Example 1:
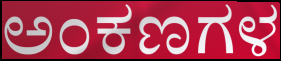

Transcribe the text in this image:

ಅಂಕಣಗಳ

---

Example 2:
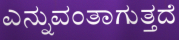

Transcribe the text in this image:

ಎನ್ನುವಂತಾಗುತ್ತದೆ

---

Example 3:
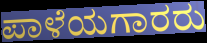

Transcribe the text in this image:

ಪಾಳೆಯಗಾರರು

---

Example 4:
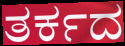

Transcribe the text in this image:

ತರ್ಕದ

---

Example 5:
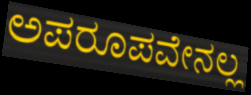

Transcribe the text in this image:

ಅಪರೂಪವೇನಲ್ಲ